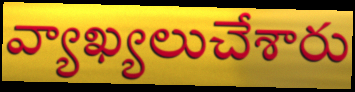
వ్యాఖ్యలుచేశారు